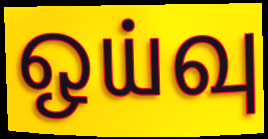
ஒய்வு